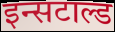
इन्सटाल्ड